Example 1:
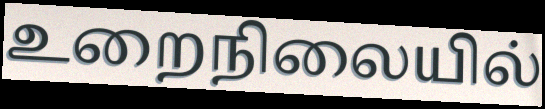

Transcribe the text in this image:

உறைநிலையில்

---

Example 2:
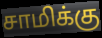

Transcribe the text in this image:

சாமிக்கு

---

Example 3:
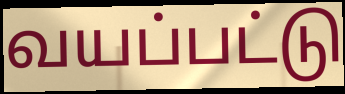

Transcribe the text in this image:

வயப்பட்டு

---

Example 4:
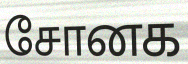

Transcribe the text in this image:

சோனக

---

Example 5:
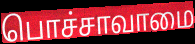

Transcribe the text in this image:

பொச்சாவாமை